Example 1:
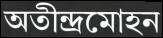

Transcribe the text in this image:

অতীন্দ্রমোহন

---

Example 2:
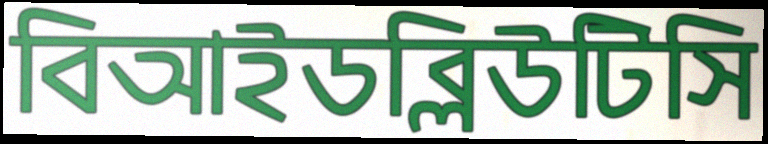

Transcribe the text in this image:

বিআইডব্লিউটিসি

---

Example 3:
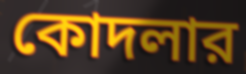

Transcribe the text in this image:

কোদলার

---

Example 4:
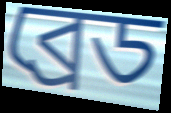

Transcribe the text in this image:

ব্রেড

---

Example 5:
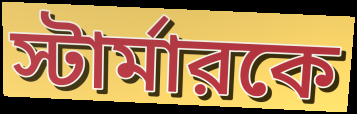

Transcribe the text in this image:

স্টার্মারকে